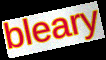
bleary